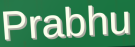
Prabhu